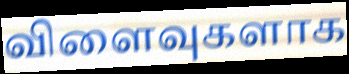
விளைவுகளாக